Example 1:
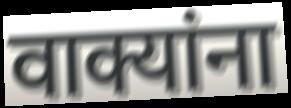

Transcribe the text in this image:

वाक्यांना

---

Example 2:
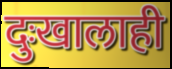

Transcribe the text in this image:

दुःखालाही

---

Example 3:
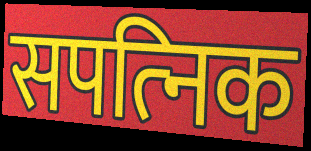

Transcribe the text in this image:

सपत्‍निक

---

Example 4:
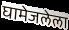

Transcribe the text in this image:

घामेजलेला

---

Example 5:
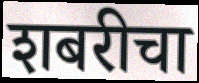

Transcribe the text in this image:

शबरीचा